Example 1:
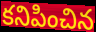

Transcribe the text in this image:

కనిపించిన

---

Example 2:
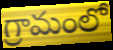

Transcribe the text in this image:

గ్రామంలో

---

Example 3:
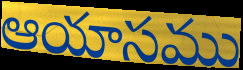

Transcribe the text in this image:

ఆయాసము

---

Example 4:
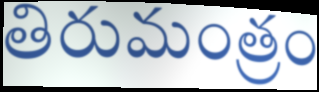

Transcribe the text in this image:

తిరుమంత్రం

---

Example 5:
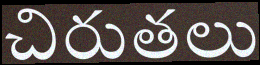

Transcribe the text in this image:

చిరుతలు